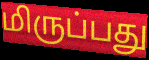
மிருப்பது